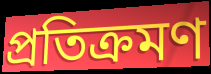
প্রতিক্রমণ